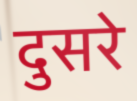
दुसरे